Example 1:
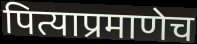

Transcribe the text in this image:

पित्याप्रमाणेच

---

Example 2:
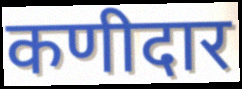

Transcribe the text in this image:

कणीदार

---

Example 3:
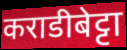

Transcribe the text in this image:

कराडीबेट्टा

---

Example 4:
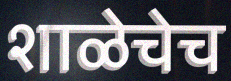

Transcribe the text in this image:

शाळेचेच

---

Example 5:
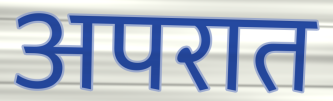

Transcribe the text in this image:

अपरात